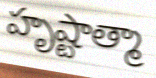
హృష్టాత్మా